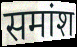
समांश